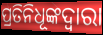
ପ୍ରତିନିଧୂଙ୍କଦ୍ଵାରା